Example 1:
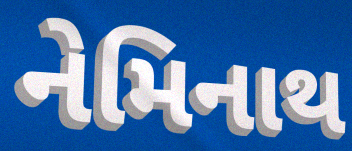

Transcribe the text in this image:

નેમિનાથ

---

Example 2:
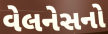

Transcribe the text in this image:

વેલનેસનો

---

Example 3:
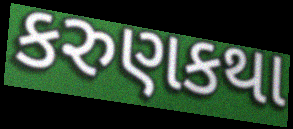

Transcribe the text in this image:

કરુણકથા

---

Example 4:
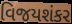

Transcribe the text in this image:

વિજયશંકર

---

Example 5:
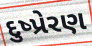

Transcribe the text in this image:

દુષ્પ્રેરણ